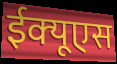
ईक्यूएस